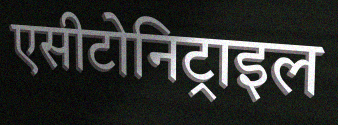
एसीटोनिट्राइल